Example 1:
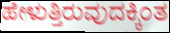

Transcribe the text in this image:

ಹೇಳುತ್ತಿರುವುದಕ್ಕಿಂತ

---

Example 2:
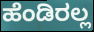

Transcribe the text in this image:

ಹೆಂಡಿರಲ್ಲ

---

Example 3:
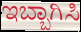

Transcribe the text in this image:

ಇಬ್ಬಾಗಿಸಿ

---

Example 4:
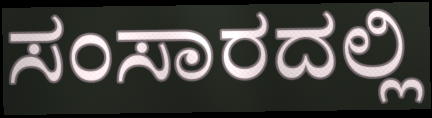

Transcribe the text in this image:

ಸಂಸಾರದಲ್ಲಿ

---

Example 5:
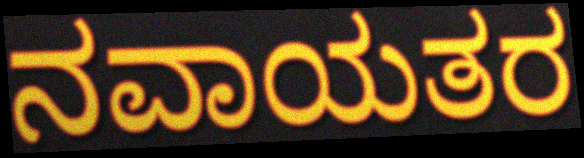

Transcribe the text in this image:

ನವಾಯತರ